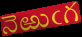
నెఱుఁగ